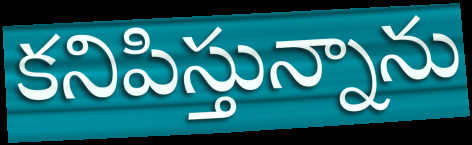
కనిపిస్తున్నాను